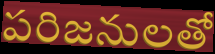
పరిజనులతో